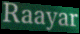
Raayar